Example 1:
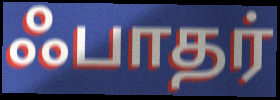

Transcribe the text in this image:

ஃபாதர்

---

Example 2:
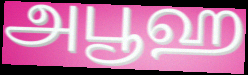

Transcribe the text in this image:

அபூஹ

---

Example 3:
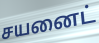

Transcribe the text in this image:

சயனைட்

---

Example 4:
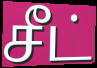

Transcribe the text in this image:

சீட்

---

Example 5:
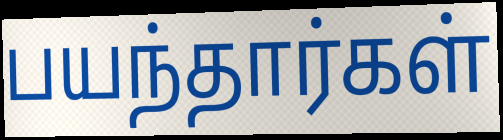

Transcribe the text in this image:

பயந்தார்கள்